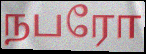
நபரோ